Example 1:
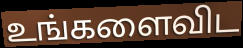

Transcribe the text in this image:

உங்களைவிட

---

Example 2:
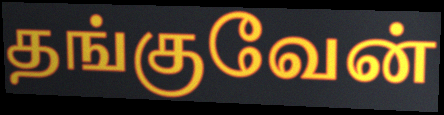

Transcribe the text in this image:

தங்குவேன்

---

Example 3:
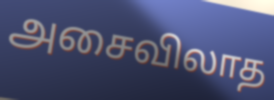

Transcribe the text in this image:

அசைவிலாத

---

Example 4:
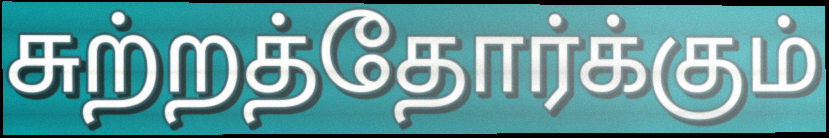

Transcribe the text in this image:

சுற்றத்தோர்க்கும்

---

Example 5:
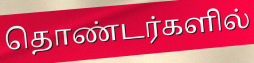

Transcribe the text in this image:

தொண்டர்களில்